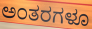
ಅಂತರಗಳೂ